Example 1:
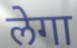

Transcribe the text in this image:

लेगा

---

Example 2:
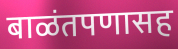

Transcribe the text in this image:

बाळंतपणासह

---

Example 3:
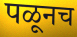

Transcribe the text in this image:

पळूनच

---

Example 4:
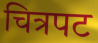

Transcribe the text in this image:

चित्रपट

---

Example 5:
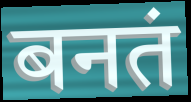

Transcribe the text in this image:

बनतं